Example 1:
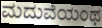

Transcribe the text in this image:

ಮದುವೆಯಂಥ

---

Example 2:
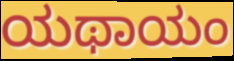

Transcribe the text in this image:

ಯಥಾಯಂ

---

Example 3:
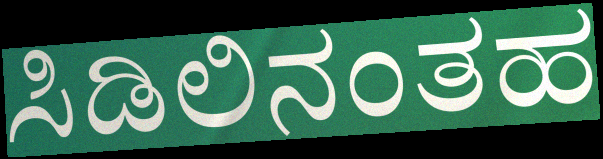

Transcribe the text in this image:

ಸಿಡಿಲಿನಂತಹ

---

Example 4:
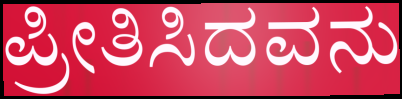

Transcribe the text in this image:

ಪ್ರೀತಿಸಿದವನು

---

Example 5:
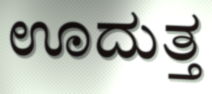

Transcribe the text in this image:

ಊದುತ್ತ